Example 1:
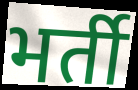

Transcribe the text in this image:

भर्ती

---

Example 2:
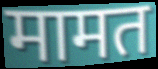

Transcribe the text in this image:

मामत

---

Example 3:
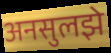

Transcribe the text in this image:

अनसुलझे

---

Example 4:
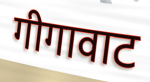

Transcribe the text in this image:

गीगावाट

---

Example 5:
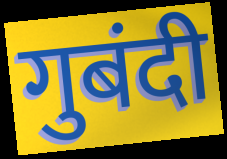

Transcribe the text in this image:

गुबंदी